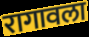
रागावला